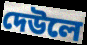
দেউলে